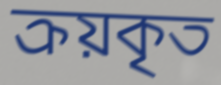
ক্রয়কৃত